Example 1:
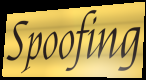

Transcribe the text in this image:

Spoofing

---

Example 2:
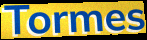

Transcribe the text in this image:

Tormes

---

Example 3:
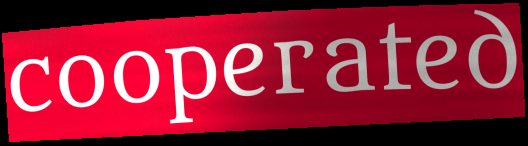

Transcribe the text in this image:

cooperated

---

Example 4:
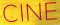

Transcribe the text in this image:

CINE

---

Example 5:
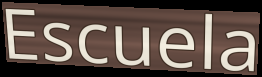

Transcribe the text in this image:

Escuela